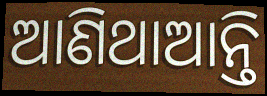
ଆଣିଥାଆନ୍ତି